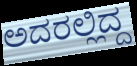
ಅದರಲ್ಲಿದ್ದ